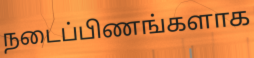
நடைப்பிணங்களாக